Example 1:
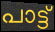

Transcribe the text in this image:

പാട്ട്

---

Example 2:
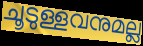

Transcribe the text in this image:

ചൂടുള്ളവനുമല്ല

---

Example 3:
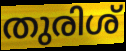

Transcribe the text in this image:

തുരിശ്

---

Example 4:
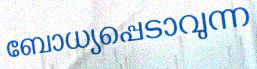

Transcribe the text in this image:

ബോധ്യപ്പെടാവുന്ന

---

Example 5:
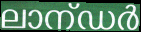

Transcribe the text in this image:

ലാന്ഡർ